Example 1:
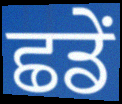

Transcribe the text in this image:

ਛਡੇਂ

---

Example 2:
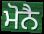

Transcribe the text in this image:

ਮੋਨੈ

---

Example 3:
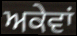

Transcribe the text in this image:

ਅਕੇਵਾਂ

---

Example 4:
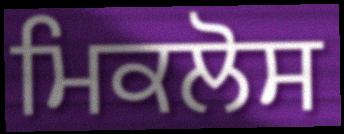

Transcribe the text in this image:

ਮਿਕਲੋਸ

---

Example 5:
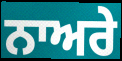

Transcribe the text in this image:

ਨਾਅਰੇ